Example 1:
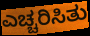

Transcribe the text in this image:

ಎಚ್ಚರಿಸಿತು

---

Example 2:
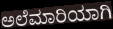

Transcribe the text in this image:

ಅಲೆಮಾರಿಯಾಗಿ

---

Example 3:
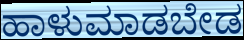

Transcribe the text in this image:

ಹಾಳುಮಾಡಬೇಡ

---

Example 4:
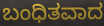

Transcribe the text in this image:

ಬಂಧಿತವಾದ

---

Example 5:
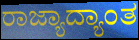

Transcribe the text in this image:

ರಾಜ್ಯಾದ್ಯಾಂತ